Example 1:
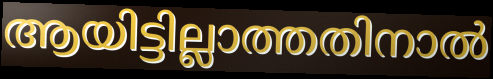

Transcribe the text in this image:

ആയിട്ടില്ലാത്തതിനാൽ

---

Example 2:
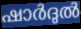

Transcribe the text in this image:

ഷാർദുൽ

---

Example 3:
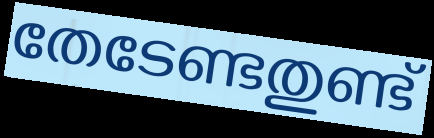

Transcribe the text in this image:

തേടേണ്ടതുണ്ട്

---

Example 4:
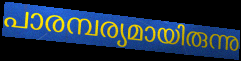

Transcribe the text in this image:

പാരമ്പര്യമായിരുന്നു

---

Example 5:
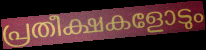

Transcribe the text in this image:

പ്രതീക്ഷകളോടും